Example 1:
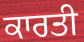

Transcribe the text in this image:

ਕਾਰਤੀ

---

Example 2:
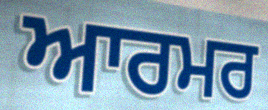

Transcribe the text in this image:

ਆਰਮਰ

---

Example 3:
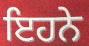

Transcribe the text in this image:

ਇਹਨੇ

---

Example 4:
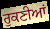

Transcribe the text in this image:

ਰੁਕਣੀਆਂ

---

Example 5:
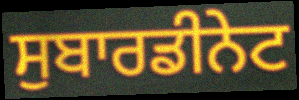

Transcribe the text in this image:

ਸੁਬਾਰਡੀਨੇਟ